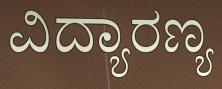
ವಿದ್ಯಾರಣ್ಯ